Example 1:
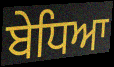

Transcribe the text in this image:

ਬੇਧਿਆ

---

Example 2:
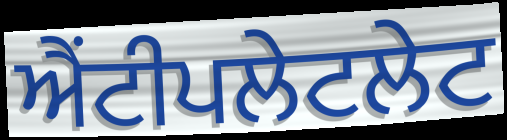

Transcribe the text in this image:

ਐਂਟੀਪਲੇਟਲੇਟ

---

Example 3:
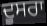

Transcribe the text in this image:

ਦੂਸਰਾ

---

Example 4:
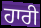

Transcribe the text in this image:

ਹਾਰੀ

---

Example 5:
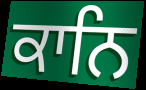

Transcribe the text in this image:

ਕਾਨਿ